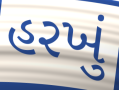
હરખું